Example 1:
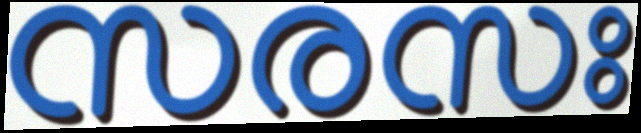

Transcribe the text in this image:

സരസഃ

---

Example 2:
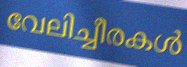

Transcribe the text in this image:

വേലിച്ചീരകൾ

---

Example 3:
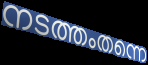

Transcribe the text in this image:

നടത്തംതന്നെ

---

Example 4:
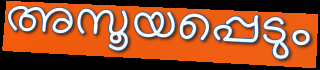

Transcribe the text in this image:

അസൂയപ്പെടും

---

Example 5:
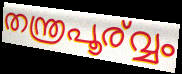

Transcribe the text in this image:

തന്ത്രപൂര്വ്വം